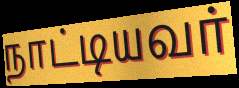
நாட்டியவர்